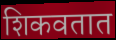
शिकवतात